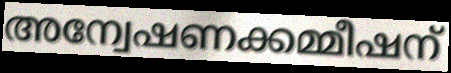
അന്വേഷണക്കമ്മീഷന്